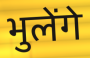
भुलेंगे